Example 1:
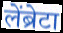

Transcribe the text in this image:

लेंब्रेटा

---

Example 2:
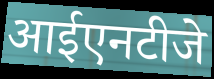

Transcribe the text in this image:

आईएनटीजे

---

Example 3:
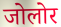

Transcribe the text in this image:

जोलोर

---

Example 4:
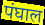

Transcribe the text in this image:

पंघाल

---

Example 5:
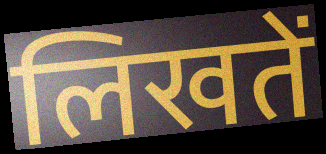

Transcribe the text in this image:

लिखतें